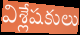
విశ్లేషకులు